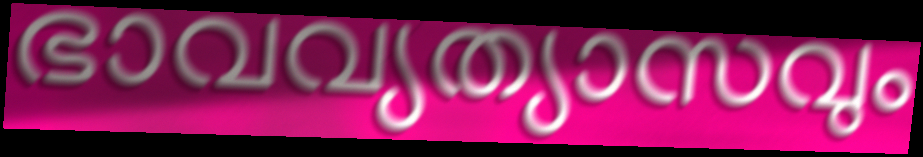
ഭാവവ്യത്യാസവും